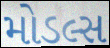
મોડલ્સ